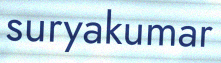
suryakumar